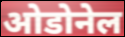
ओडोनेल